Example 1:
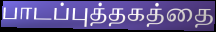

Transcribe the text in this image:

பாடப்புத்தகத்தை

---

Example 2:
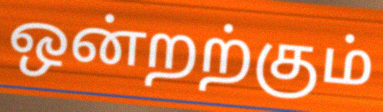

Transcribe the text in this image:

ஒன்றற்கும்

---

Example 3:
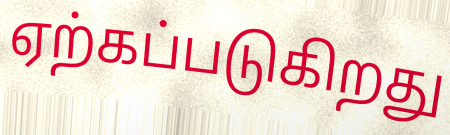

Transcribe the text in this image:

ஏற்கப்படுகிறது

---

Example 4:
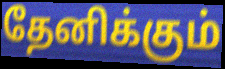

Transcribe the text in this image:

தேனிக்கும்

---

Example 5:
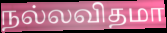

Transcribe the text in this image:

நல்லவிதமா